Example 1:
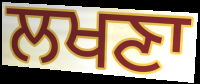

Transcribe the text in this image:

ਲਖਣਾ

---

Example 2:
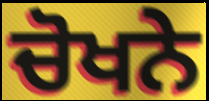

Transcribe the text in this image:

ਚੋਖਨੇ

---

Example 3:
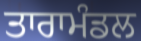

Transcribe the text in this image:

ਤਾਰਾਮੰਡਲ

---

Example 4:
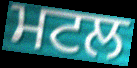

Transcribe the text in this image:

ਮਟਲ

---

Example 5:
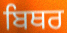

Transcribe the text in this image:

ਬਿਥਰ